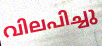
വിലപിച്ചു